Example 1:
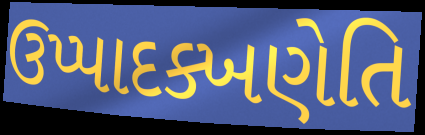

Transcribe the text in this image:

ઉપ્પાદક્ખણેતિ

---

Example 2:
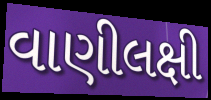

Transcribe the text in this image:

વાણીલક્ષી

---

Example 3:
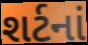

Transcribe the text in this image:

શર્ટનાં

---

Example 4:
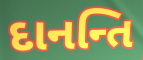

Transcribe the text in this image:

દાનન્તિ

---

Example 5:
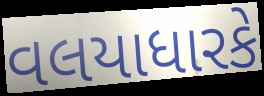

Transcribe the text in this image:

વલયાધારકે